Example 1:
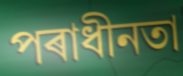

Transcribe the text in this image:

পৰাধীনতা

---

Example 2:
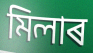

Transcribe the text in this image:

মিলাৰ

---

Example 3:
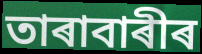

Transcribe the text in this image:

তাৰাবাৰীৰ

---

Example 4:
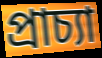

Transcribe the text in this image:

প্ৰাচ্যা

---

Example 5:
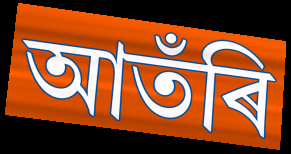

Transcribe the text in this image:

আতঁৰি